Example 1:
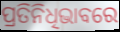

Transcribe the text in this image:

ପ୍ରତିନିଧିଭାବରେ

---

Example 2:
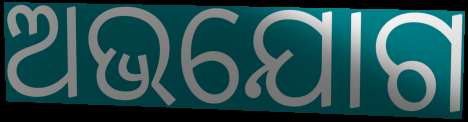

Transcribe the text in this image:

ଅଭଯୋଗ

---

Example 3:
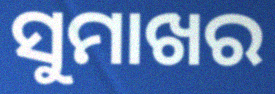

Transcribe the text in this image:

ସୁମାଖର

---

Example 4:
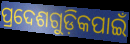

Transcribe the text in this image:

ପ୍ରଦେଶଗୁଡ଼ିକପାଇଁ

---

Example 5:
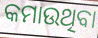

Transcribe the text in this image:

କମାଉଥିବା